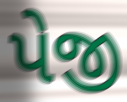
પેજી